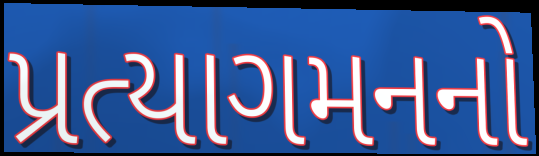
પ્રત્યાગમનનો